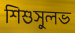
শিশুসুলভ